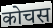
कोचस